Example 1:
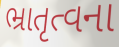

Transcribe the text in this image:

ભ્રાતૃત્વના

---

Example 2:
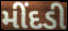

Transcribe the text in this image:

મીંદડી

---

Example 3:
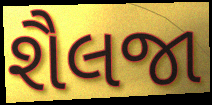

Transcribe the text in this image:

શૈલજા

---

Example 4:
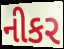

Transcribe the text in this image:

નીકર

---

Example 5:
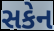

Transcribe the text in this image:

સકેન